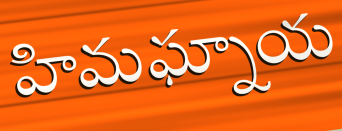
హిమఘ్నాయ